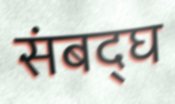
संबद्घ